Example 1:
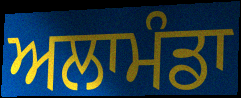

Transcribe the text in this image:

ਅਲਾਮੰਡਾ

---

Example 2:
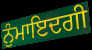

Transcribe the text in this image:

ਨੁੰਮਾਇਦਗੀ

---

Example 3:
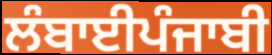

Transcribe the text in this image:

ਲੰਬਾਈਪੰਜਾਬੀ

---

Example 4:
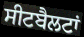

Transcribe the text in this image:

ਸੀਟਬੈਲਟਾਂ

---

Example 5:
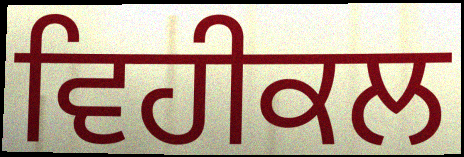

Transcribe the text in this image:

ਵਿਹੀਕਲ